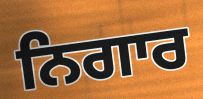
ਨਿਗਾਰ